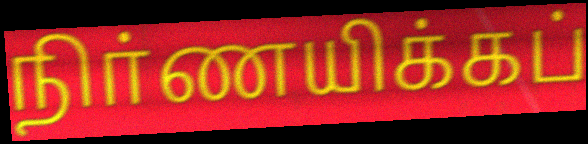
நிர்ணயிக்கப்